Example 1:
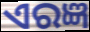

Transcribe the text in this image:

ଏରଜ୍ଞ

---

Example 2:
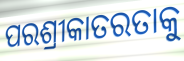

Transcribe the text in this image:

ପରଶ୍ରୀକାତରତାକୁ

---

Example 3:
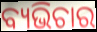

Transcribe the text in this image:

ବ୍ୟଭିଚାର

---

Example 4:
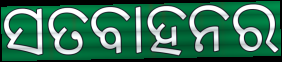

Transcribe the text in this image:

ସତବାହନର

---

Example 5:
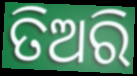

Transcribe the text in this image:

ତିଅରି